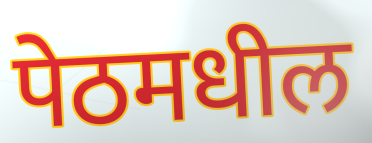
पेठमधील